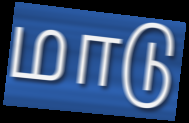
மாடு